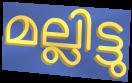
മല്ലിട്ടു